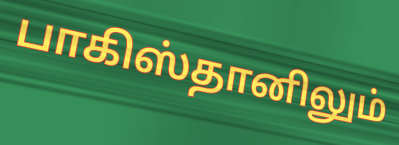
பாகிஸ்தானிலும்